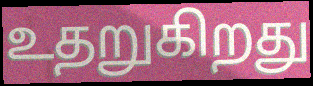
உதறுகிறது